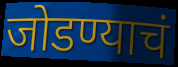
जोडण्याचं